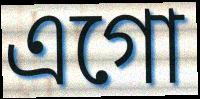
এগো